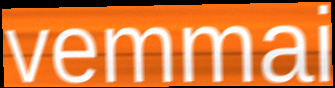
vemmai